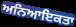
ਅਨਿਆਇਕਤਾ